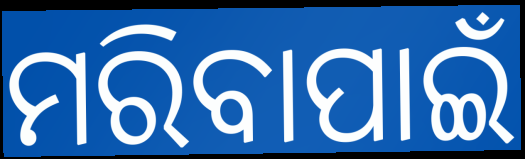
ମରିବାପାଇଁ